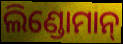
ଲିଣ୍ଡୋମାନ୍